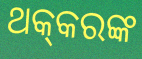
ଥକ୍‌କରଙ୍କ